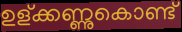
ഉള്ക്കണ്ണുകൊണ്ട്